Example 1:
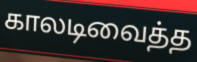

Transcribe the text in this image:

காலடிவைத்த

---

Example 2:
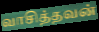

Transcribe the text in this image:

வாசித்தவன்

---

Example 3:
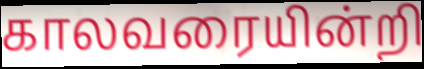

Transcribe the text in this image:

காலவரையின்றி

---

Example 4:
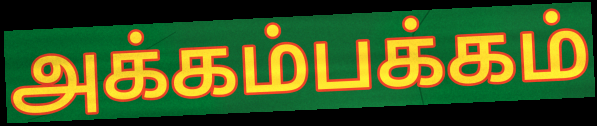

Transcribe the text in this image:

அக்கம்பக்கம்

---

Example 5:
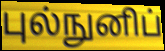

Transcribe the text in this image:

புல்நுனிப்